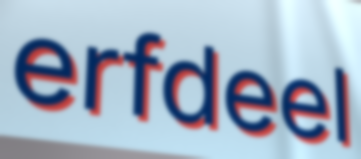
erfdeel